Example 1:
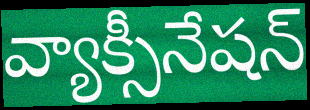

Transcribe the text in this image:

వ్యాక్సీనేషన్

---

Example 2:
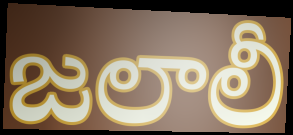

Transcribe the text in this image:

జలాలీ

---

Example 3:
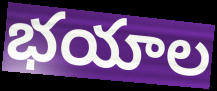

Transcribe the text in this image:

భయాల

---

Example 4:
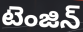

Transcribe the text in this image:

టెంజిన్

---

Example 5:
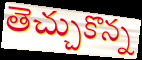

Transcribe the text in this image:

తెచ్చుకొన్న